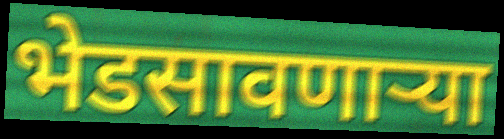
भेडसावणार्‍या